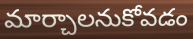
మార్చాలనుకోవడం